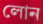
লোন